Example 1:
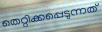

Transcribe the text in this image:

തെറ്റിക്കപ്പെടുന്നത്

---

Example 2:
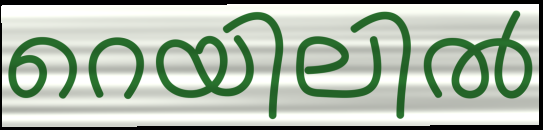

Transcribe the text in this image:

റെയിലിൽ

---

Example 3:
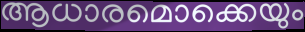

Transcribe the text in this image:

ആധാരമൊക്കെയും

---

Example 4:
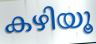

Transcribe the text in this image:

കഴിയൂ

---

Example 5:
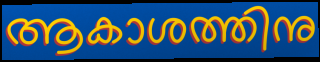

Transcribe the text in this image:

ആകാശത്തിനു